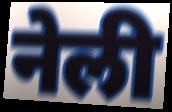
नेली